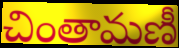
చింతామణీ